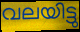
വലയിട്ടു